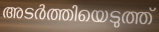
അടർത്തിയെടുത്ത്